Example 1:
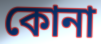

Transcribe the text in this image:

কোনা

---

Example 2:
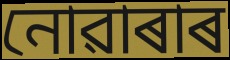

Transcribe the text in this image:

নোৱাৰাৰ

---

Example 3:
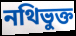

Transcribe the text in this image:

নথিভুক্ত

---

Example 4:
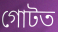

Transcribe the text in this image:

গোটত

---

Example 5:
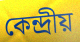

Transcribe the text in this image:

কেন্দ্ৰীয়